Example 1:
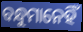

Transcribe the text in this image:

ବନ୍ଧୁମାନେହିଁ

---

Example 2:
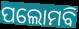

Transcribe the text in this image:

ପଲୋମବି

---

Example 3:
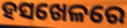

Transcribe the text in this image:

ହସଖେଳରେ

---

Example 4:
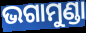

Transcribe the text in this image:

ଭଗାମୁଣ୍ଡା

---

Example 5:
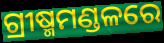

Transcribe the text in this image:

ଗ୍ରୀଷ୍ମମଣ୍ଡଳରେ